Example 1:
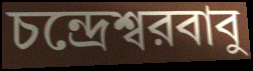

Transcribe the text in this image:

চন্দ্রেশ্বরবাবু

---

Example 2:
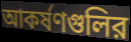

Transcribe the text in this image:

আকর্ষণগুলির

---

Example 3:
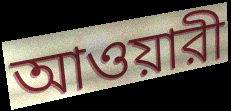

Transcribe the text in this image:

আওয়ারী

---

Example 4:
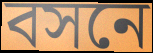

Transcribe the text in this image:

বসনে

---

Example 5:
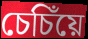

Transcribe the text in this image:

চেচিঁয়ে